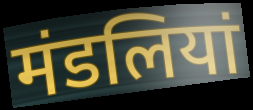
मंडलियां